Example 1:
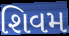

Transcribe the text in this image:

શિવમ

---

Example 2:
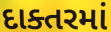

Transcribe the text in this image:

દાક્તરમાં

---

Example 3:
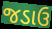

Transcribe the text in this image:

જડાઉ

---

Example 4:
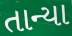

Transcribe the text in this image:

તાન્યા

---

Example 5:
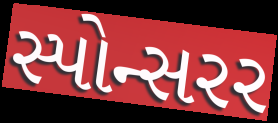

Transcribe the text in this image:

સ્પોન્સરર